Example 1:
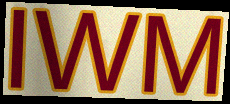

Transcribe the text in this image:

IWM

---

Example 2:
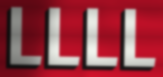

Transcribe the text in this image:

LLLL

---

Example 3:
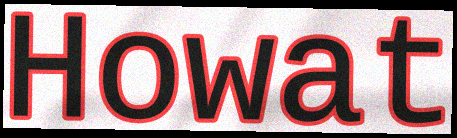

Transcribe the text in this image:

Howat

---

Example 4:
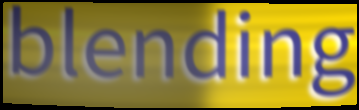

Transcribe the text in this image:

blending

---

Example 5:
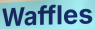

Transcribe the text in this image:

Waffles